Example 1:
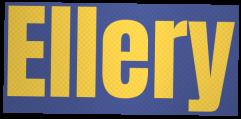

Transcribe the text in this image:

Ellery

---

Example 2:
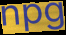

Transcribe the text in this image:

npg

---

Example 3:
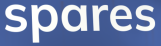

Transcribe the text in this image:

spares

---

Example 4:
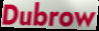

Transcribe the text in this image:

Dubrow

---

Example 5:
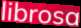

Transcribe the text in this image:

librosa